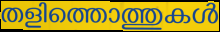
തളിത്തൊത്തുകൾ